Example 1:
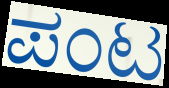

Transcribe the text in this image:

ಪಂಟ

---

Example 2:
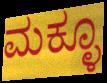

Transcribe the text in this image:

ಮಕ್ಳೂ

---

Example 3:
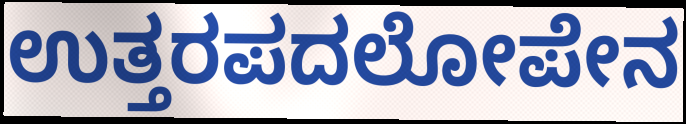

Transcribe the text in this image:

ಉತ್ತರಪದಲೋಪೇನ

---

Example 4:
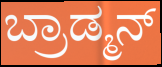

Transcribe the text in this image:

ಬ್ರಾಡ್ಮನ್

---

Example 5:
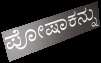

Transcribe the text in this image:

ಪೋಷಾಕನ್ನು